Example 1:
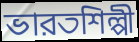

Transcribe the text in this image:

ভারতশিল্পী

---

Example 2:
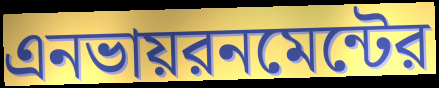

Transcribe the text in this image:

এনভায়রনমেন্টের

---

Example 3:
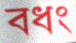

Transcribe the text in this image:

বধং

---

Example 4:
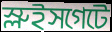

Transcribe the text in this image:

স্লুইসগেটে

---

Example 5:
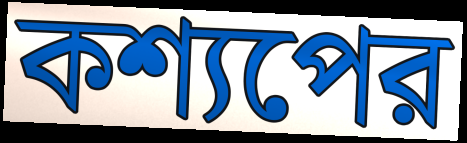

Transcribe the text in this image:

কশ্যপের